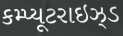
કમ્પ્યૂટરાઇઝ્ડ